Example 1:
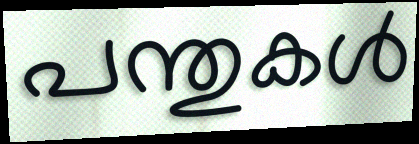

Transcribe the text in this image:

പന്തുകൾ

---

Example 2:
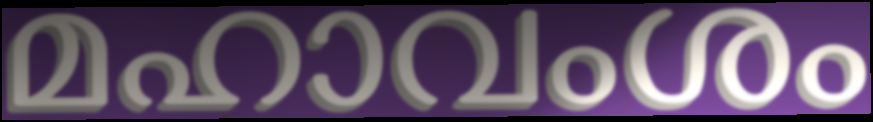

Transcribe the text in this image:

മഹാവംശം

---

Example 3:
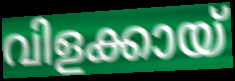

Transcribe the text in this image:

വിളക്കായ്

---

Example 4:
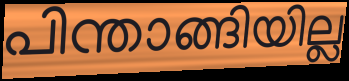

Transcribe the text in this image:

പിന്താങ്ങിയില്ല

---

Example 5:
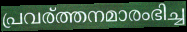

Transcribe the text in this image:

പ്രവര്ത്തനമാരംഭിച്ച